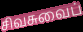
சிவசுவைப்